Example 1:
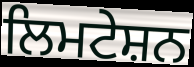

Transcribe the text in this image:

ਲਿਮਟੇਸ਼ਨ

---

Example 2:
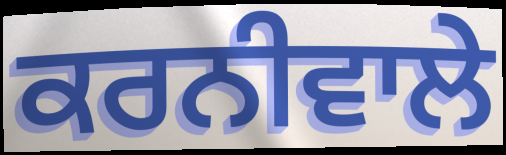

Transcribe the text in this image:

ਕਰਨੀਵਾਲੇ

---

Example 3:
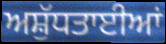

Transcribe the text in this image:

ਅਸ਼ੁੱਧਤਾਈਆਂ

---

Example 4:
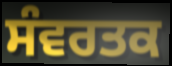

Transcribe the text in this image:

ਸੰਵਰਤਕ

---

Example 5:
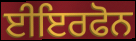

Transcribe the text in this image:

ਈਇਰਫੋਨ